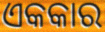
ଏକକାର